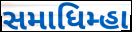
સમાધિમ્હા